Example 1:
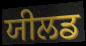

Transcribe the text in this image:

ਯੀਲਡ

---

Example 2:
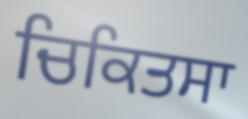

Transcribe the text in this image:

ਚਿਕਿਤਸਾ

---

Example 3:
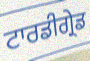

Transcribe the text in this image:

ਟਾਰਡੀਗ੍ਰੇਡ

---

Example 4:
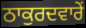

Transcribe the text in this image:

ਠਾਕੁਰਦਵਾਰੇਂ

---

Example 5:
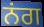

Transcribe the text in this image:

ਨਂਗ